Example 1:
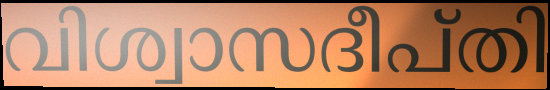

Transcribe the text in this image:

വിശ്വാസദീപ്തി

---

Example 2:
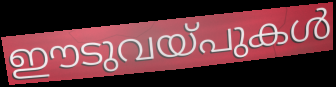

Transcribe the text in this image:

ഈടുവയ്പുകൾ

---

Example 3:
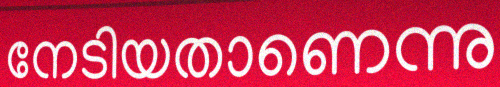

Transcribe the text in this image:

നേടിയതാണെന്നു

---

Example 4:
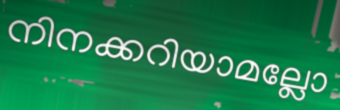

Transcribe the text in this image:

നിനക്കറിയാമല്ലോ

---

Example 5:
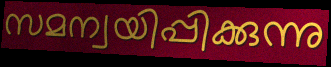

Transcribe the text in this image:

സമന്വയിപ്പിക്കുന്നു